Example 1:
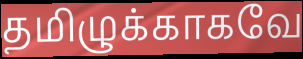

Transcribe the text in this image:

தமிழுக்காகவே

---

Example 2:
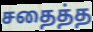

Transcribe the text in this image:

சதைத்த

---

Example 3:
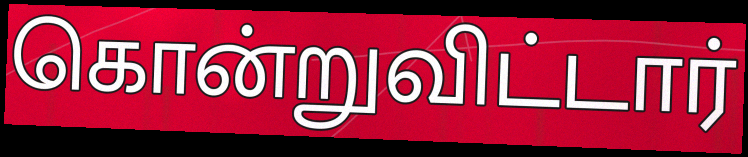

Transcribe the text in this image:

கொன்றுவிட்டார்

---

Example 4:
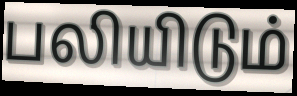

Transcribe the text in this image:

பலியிடும்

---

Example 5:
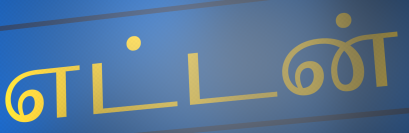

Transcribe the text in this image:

எட்டன்